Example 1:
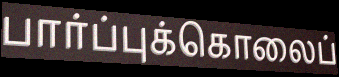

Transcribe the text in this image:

பார்ப்புக்கொலைப்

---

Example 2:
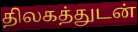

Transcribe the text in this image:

திலகத்துடன்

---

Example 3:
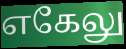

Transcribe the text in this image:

எகேலு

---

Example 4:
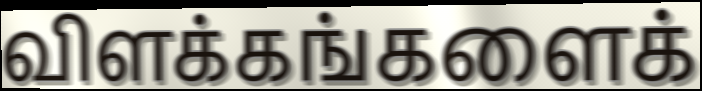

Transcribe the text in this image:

விளக்கங்களைக்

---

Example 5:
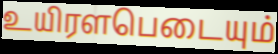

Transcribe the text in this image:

உயிரளபெடையும்